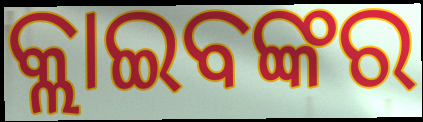
କ୍ଲାଇବଙ୍କର